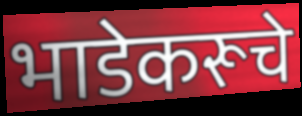
भाडेकरूचे